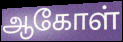
ஆகோள்